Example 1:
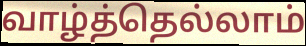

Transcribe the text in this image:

வாழ்த்தெல்லாம்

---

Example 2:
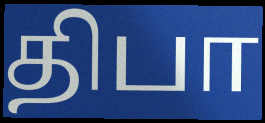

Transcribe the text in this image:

திபா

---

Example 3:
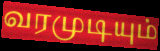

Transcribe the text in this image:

வரமுடியும்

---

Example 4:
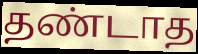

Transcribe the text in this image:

தண்டாத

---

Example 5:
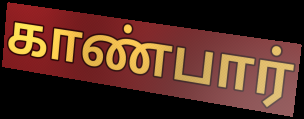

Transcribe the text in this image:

காண்பார்